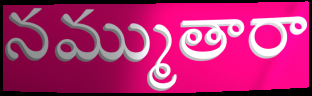
నమ్ముతారా